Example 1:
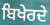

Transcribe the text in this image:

ਬਿਖੇਰਦੇ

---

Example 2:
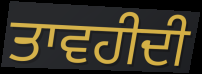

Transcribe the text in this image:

ਤਾਵਹੀਦੀ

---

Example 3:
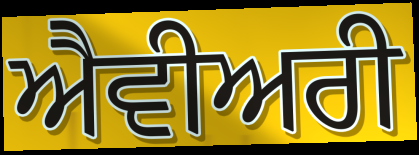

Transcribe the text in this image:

ਐਵੀਅਰੀ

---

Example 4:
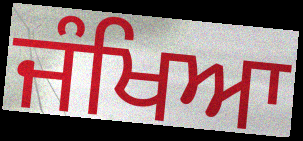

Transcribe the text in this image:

ਜੰਖਿਆ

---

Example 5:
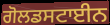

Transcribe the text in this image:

ਗੋਲਡਸਟਾਈਨ